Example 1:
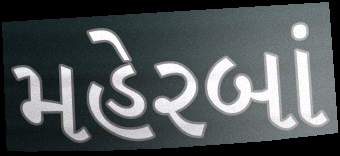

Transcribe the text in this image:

મહેરબાં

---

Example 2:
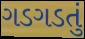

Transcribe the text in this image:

ગડગડતું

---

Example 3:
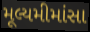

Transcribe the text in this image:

મૂલ્યમીમાંસા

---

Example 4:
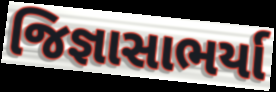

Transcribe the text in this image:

જિજ્ઞાસાભર્યા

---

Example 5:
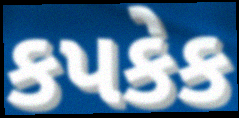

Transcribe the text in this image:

કપકેક